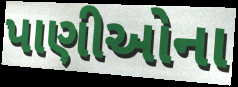
પાણીઓના